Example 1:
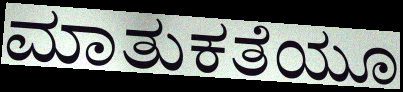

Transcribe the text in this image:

ಮಾತುಕತೆಯೂ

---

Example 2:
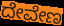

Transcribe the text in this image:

ದೇವೇಣ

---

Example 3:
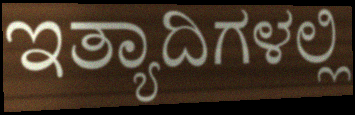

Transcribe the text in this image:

ಇತ್ಯಾದಿಗಳಲ್ಲಿ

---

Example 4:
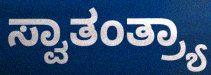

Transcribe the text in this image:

ಸ್ವಾತಂತ್ರ್ಯಾ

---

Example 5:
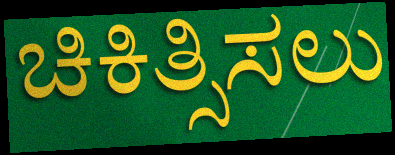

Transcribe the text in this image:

ಚಿಕಿತ್ಸಿಸಲು